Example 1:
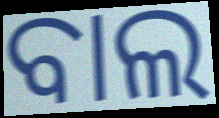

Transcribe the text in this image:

ବାଲ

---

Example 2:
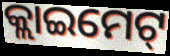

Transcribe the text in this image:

କ୍ଲାଇମେଟ୍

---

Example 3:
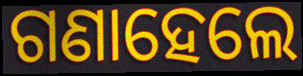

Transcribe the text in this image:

ଗଣାହେଲେ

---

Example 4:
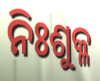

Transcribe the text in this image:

ନିଃଶୁକ୍ଳ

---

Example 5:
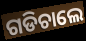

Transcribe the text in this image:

ଗଡିଚାଲେ